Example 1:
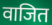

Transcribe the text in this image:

वाजित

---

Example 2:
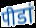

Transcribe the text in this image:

पीडां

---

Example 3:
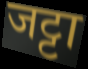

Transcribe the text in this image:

जट्टा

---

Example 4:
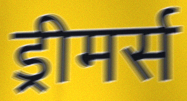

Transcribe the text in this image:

ड्रीमर्स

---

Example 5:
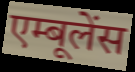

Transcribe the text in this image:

एम्बूलेंस